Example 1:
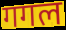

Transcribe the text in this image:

गगल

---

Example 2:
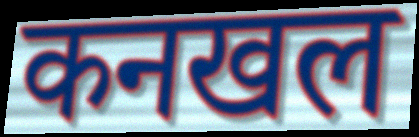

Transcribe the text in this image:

कनखल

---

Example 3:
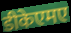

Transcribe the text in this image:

डीकेएमए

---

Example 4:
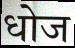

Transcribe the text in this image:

धोज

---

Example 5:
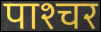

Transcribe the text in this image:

पाश्चर